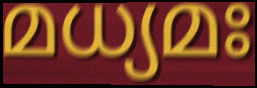
മധ്യമഃ